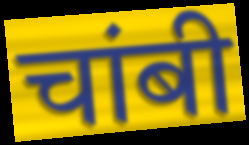
चांबी